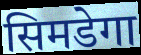
सिमडेगा